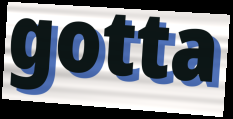
gotta